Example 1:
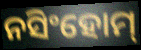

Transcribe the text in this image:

ନସିଂହୋମ୍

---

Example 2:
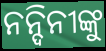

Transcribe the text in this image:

ନନ୍ଦିନୀଙ୍କୁ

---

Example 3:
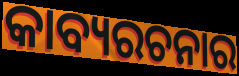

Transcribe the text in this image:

କାବ୍ୟରଚନାର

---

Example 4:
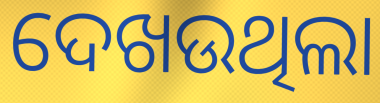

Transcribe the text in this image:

ଦେଖଉଥିଲା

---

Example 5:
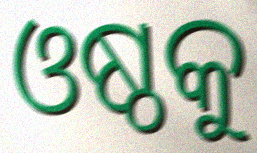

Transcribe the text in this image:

ଓଷ୍ଠକୁ